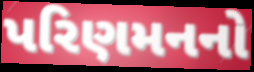
પરિણમનનો